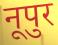
नूपुर